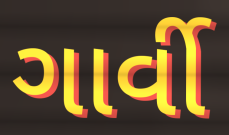
ગાર્વી